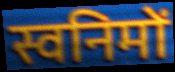
स्वनिमों